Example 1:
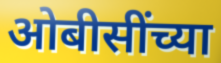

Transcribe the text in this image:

ओबीसींच्या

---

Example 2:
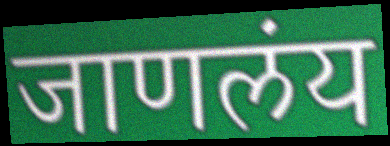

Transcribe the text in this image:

जाणलंय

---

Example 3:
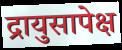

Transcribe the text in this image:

द्रायुसापेक्ष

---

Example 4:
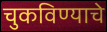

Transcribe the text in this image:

चुकविण्याचे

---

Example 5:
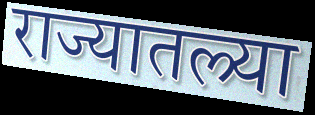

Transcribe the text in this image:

राज्यातल्या